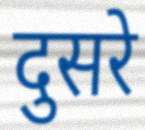
दुसरे